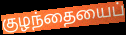
குழந்தையைப்